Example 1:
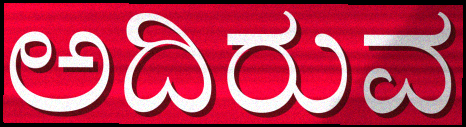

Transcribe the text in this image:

ಅದಿರುವ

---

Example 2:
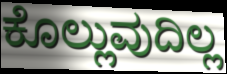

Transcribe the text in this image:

ಕೊಲ್ಲುವುದಿಲ್ಲ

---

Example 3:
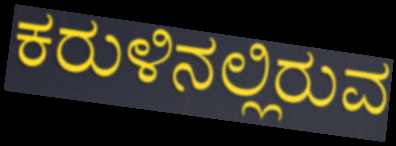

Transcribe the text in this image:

ಕರುಳಿನಲ್ಲಿರುವ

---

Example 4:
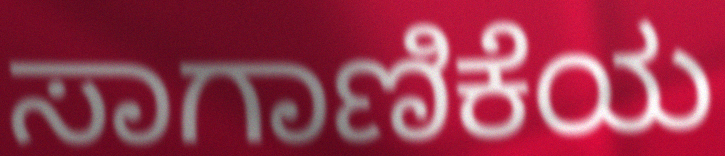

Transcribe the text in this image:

ಸಾಗಾಣಿಕೆಯ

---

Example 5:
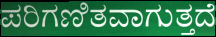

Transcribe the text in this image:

ಪರಿಗಣಿತವಾಗುತ್ತದೆ